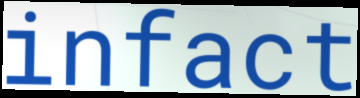
infact